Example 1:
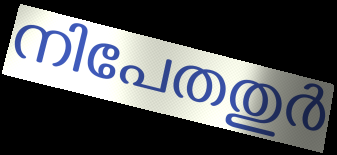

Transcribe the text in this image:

നിപേതതുർ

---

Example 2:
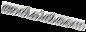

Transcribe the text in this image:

അരികിൽതന്നെ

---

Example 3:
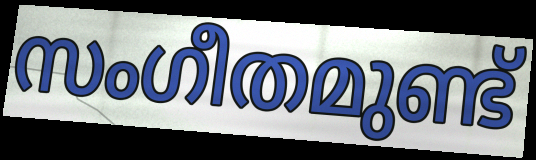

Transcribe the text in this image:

സംഗീതമുണ്ട്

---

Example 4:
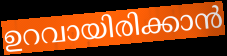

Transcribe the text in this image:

ഉറവായിരിക്കാൻ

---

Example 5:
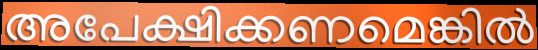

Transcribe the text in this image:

അപേക്ഷിക്കണമെങ്കിൽ